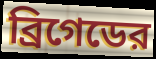
ব্রিগেডের